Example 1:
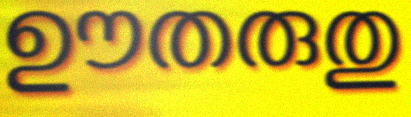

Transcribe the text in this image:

ഊതരുതു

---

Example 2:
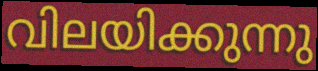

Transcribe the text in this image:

വിലയിക്കുന്നു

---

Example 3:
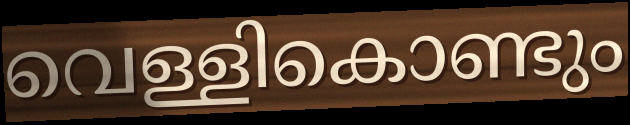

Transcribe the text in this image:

വെള്ളികൊണ്ടും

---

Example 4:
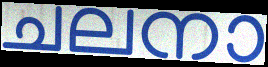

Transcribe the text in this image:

ചലനാ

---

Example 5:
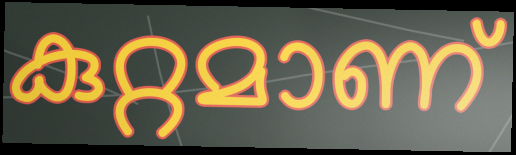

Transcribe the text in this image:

കുറ്റമാണ്